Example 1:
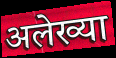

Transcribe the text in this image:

अलेख्या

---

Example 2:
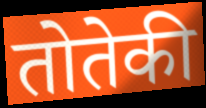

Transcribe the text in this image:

तोतेकी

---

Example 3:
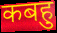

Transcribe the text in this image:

कबहु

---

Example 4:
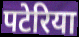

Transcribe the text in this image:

पटेरिया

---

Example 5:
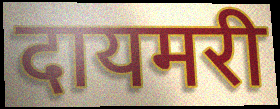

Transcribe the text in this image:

दायमरी